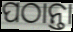
ପଠାନ୍ତା